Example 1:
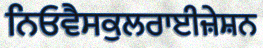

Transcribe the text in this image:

ਨਿਓਵੈਸਕੁਲਰਾਈਜ਼ੇਸ਼ਨ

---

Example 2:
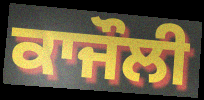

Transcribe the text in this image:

ਕਾਜੌਲੀ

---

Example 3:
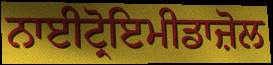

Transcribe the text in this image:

ਨਾਈਟ੍ਰੋਇਮੀਡਾਜ਼ੋਲ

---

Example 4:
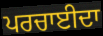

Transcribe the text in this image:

ਪਰਚਾਈਦਾ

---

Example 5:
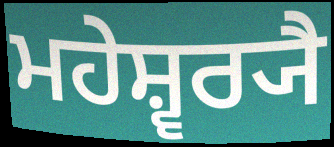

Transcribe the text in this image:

ਮਹੇਸ਼੍ਵਰ੍ਯੈ